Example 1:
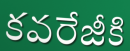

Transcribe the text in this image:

కవరేజీకి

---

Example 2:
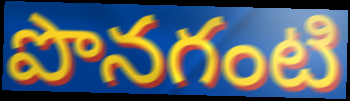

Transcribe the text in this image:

పొనగంటి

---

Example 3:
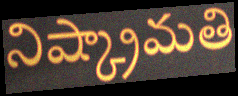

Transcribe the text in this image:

నిష్క్రామతి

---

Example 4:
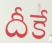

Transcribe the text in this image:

దీకే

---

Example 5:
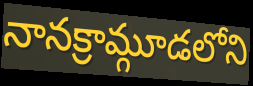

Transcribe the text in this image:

నానక్రామ్గూడలోని